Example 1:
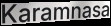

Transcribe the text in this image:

Karamnasa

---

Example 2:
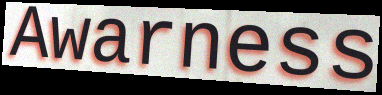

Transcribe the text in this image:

Awarness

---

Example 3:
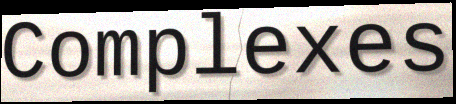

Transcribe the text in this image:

Complexes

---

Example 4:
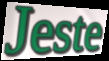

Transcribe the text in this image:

Jeste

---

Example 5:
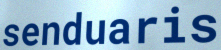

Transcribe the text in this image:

senduaris